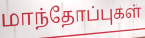
மாந்தோப்புகள்